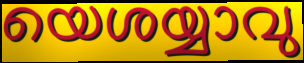
യെശയ്യാവു